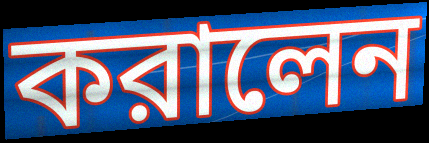
করালেন